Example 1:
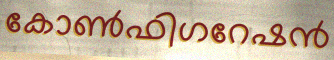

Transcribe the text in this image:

കോൺഫിഗറേഷൻ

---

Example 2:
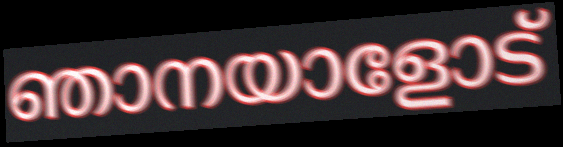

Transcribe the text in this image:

ഞാനയാളോട്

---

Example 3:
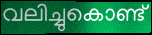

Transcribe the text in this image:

വലിച്ചുകൊണ്ട്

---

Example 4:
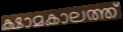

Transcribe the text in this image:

ക്ഷാമകാലത്ത്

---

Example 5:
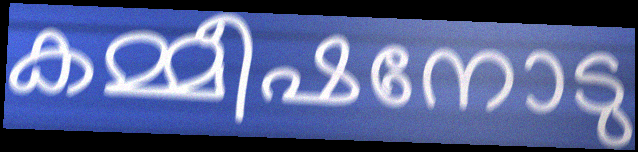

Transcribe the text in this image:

കമ്മീഷനോടു